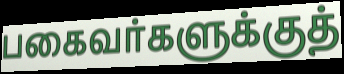
பகைவர்களுக்குத்